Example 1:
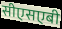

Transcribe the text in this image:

सीएसएबी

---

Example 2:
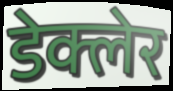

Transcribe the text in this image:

डेक्लेर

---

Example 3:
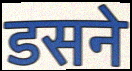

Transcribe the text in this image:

डसने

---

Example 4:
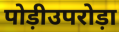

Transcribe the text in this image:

पोड़ीउपरोड़ा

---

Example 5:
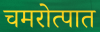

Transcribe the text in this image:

चमरोत्पात